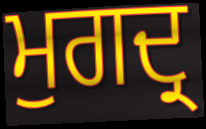
ਮੁਗਦ੍ਰ